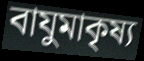
বাযুমাকৃষ্য